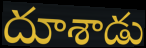
దూశాడు